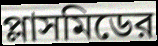
প্লাসমিডের